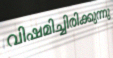
വിഷമിച്ചിരിക്കുന്നു